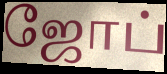
ஜோப்